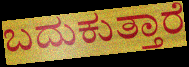
ಬದುಕುತ್ತಾರೆ